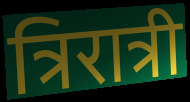
त्रिरात्री